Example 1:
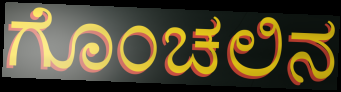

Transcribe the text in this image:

ಗೊಂಚಲಿನ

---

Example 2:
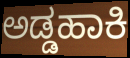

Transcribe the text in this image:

ಅಡ್ಡಹಾಕಿ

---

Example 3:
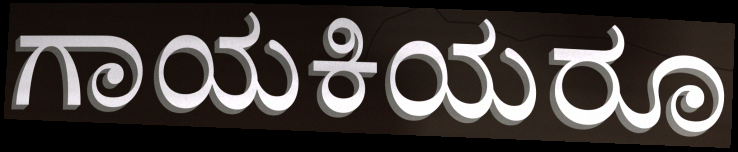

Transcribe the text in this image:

ಗಾಯಕಿಯರೂ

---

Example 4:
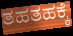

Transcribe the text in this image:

ತಹತಹಕ್ಕೆ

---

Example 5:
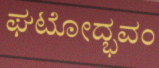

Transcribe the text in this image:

ಘಟೋದ್ಭವಂ